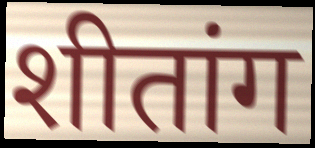
शीतांग